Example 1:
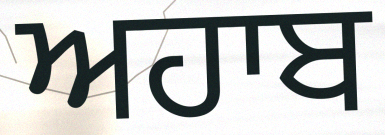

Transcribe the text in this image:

ਅਹਾਬ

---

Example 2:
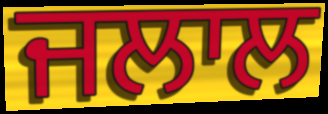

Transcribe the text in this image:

ਜਲਾਲ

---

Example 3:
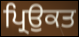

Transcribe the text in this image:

ਪ੍ਰਿਉਕਤ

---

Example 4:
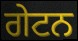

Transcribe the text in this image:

ਗੇਟਨ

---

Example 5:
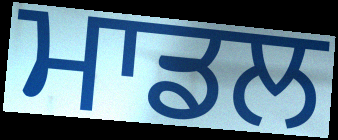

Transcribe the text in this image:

ਮਾਡਲ